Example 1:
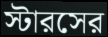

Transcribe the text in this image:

স্টারসের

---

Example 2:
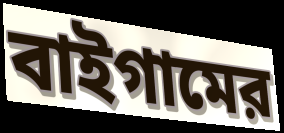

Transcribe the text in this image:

বাইগামের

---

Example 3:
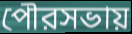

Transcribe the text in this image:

পৌরসভায়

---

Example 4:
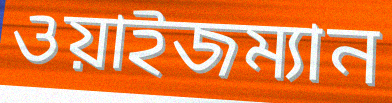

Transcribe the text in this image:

ওয়াইজম্যান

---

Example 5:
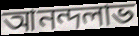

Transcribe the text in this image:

আনন্দলাভ